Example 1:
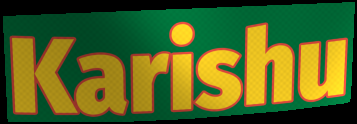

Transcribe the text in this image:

Karishu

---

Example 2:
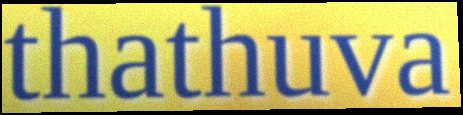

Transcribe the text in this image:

thathuva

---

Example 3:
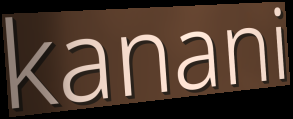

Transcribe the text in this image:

kanani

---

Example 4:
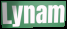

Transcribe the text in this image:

Lynam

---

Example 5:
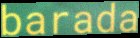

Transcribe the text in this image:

barada